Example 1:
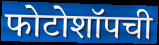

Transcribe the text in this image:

फोटोशॉपची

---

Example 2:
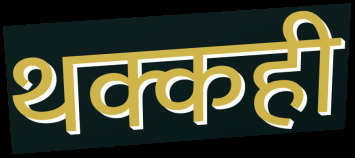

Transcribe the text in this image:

थक्कही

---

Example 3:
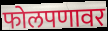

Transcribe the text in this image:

फोलपणावर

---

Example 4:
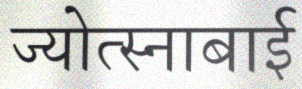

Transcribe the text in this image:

ज्योत्स्नाबाई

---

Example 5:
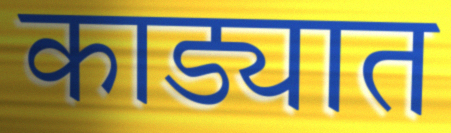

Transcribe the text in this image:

काड्यात